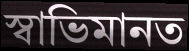
স্বাভিমানত